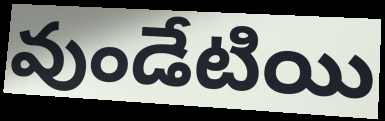
వుండేటియి